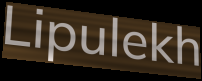
Lipulekh